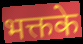
भक्तके